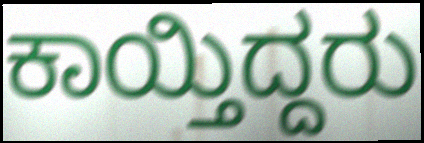
ಕಾಯ್ತಿದ್ದರು